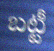
బట్టీ